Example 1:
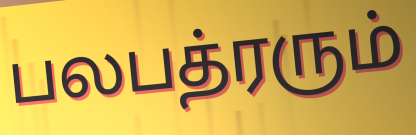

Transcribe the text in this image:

பலபத்ரரும்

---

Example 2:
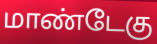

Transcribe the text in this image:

மாண்டேகு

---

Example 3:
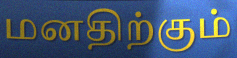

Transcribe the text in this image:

மனதிற்கும்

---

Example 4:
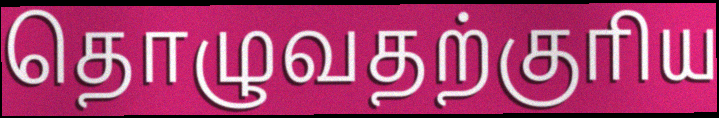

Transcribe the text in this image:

தொழுவதற்குரிய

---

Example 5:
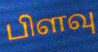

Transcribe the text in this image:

பிளவு